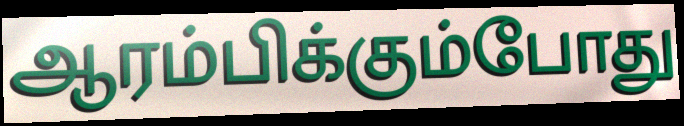
ஆரம்பிக்கும்போது